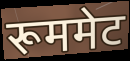
रूममेट